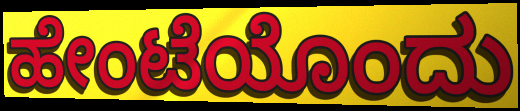
ಹೇಂಟೆಯೊಂದು